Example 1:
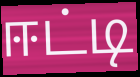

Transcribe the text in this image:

ஈட்டி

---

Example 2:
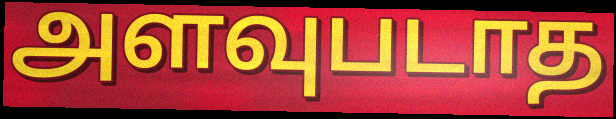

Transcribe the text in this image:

அளவுபடாத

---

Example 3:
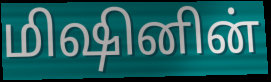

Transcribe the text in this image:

மிஷினின்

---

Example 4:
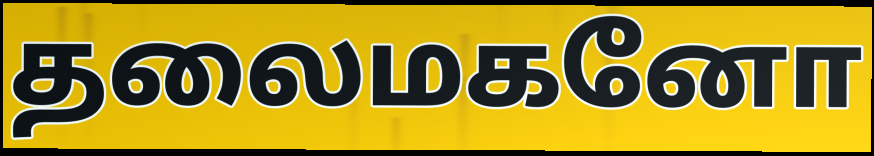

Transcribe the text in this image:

தலைமகனோ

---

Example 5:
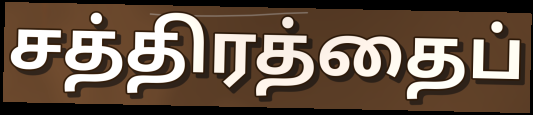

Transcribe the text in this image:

சத்திரத்தைப்